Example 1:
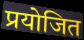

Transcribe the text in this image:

प्रयोजित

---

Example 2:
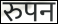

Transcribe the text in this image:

रुपन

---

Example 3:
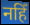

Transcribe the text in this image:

नहिँ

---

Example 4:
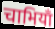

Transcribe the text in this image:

चाभियाँ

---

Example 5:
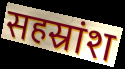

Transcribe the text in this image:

सहस्रांश